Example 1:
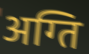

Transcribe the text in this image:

अग्ति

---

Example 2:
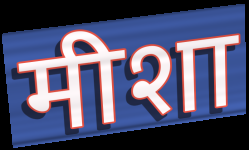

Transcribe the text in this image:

मीशा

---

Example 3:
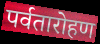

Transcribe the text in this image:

पर्वतारोहण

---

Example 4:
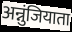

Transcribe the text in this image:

अन्नुंजियाता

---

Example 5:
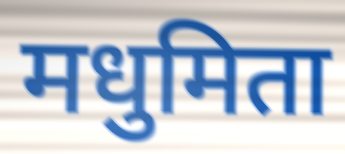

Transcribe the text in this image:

मधुमिता